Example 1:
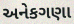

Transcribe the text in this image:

અનેકગણા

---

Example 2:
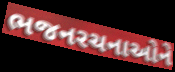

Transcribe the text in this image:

ભજનરચનાઓને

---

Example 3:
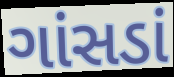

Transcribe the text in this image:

ગાંસડાં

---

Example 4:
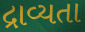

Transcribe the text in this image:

દ્રાવ્યતા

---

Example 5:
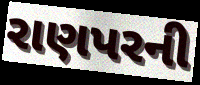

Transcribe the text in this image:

રાણપરની